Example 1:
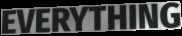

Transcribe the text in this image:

EVERYTHING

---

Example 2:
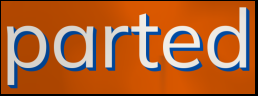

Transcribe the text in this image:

parted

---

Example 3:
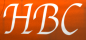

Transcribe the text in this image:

HBC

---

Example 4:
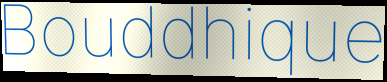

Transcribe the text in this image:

Bouddhique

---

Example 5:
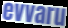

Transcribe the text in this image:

evvaru